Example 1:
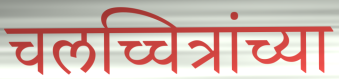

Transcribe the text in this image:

चलच्चित्रांच्या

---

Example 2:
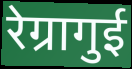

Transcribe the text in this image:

रेग्रागुई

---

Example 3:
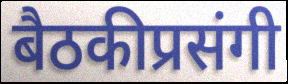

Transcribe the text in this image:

बैठकीप्रसंगी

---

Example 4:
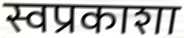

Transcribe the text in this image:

स्वप्रकाशा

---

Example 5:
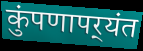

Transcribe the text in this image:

कुंपणापर्यंत